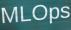
MLOps